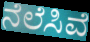
ನೆಲೆಸಿವೆ